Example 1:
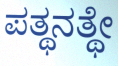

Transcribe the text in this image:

ಪತ್ಥನತ್ಥೇ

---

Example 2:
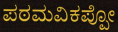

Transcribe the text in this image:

ಪಠಮವಿಕಪ್ಪೋ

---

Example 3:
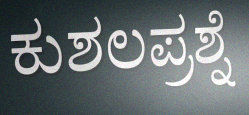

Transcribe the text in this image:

ಕುಶಲಪ್ರಶ್ನೆ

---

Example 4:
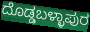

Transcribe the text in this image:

ದೊಡ್ಡಬಳ್ಳಾಪುರ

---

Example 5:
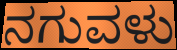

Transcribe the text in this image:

ನಗುವಳು